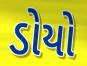
ડોયો